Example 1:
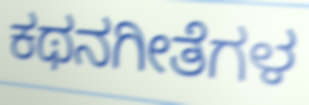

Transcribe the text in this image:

ಕಥನಗೀತೆಗಳ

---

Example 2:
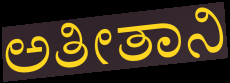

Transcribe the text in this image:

ಅತೀತಾನಿ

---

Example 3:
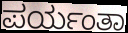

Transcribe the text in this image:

ಪರ್ಯಂತಾ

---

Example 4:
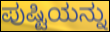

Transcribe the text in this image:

ಪುಷ್ಟಿಯನ್ನು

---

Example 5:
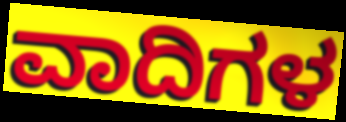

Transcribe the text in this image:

ವಾದಿಗಳ